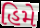
હિમે